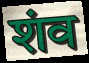
शंव